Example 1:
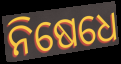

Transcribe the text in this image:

ନିଷେଧେ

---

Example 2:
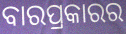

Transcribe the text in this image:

ବାରପ୍ରକାରର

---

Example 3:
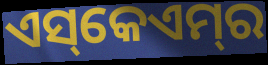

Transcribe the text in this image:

ଏସ୍‌କେଏମ୍‌ର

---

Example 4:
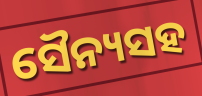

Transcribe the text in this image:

ସୈନ୍ୟସହ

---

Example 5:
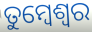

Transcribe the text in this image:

ତୁମ୍ବେଶ୍ଵର